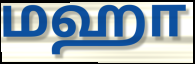
மஹா